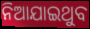
ନିଆଯାଇଥୁବ